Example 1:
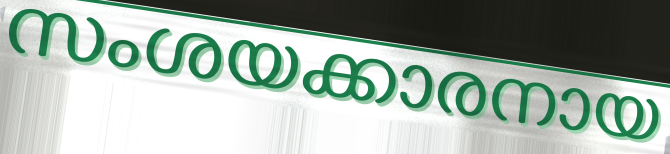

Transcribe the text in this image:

സംശയക്കാരനായ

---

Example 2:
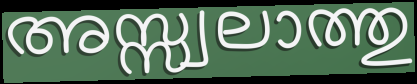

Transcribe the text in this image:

അസ്സ്വലാത്തു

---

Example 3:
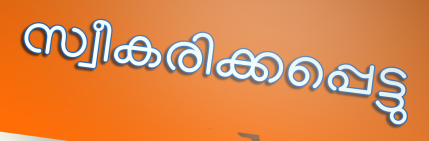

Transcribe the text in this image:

സ്വീകരിക്കപ്പെട്ടു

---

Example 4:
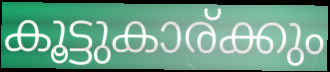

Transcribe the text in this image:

കൂട്ടുകാര്ക്കും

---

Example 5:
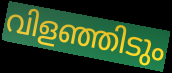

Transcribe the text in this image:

വിളഞ്ഞിടും